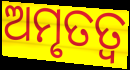
ଅମୃତତ୍ବ